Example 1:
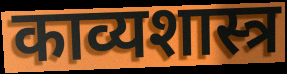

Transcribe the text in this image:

काव्यशास्त्र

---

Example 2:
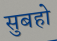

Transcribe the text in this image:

सुबहो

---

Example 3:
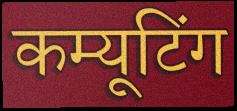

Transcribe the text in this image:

कम्यूटिंग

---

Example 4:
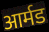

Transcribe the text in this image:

आर्मड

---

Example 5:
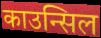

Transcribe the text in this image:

काउन्सिल